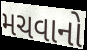
મચવાનો